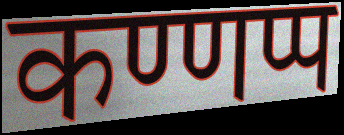
कण्णप्प